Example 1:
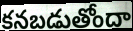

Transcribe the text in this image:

కనబడుతోందా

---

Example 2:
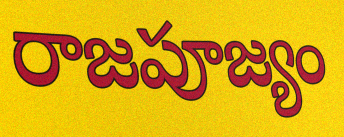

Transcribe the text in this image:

రాజపూజ్యం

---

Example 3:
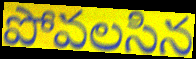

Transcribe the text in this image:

పోవలసిన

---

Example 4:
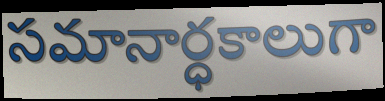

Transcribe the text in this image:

సమానార్ధకాలుగా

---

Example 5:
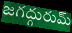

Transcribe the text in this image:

జగద్గురుమ్